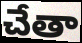
చేతా